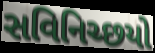
સવિનિચ્છયો